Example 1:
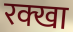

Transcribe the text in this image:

रक्‍खा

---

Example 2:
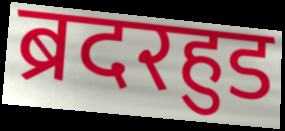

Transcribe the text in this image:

ब्रदरहुड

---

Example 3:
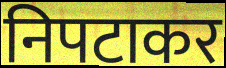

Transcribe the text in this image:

निपटाकर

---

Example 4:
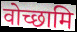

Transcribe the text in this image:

वोच्छामि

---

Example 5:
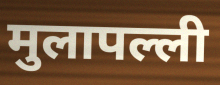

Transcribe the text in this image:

मुलापल्ली